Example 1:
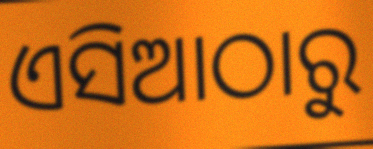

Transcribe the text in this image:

ଏସିଆଠାରୁ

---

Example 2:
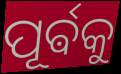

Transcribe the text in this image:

ପୂର୍ଵକୁ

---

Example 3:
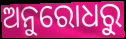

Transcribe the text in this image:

ଅନୁରୋଧରୁ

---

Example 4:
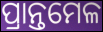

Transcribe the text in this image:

ପ୍ରାନ୍ତମେଳ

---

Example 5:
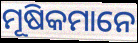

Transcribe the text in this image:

ମୂଷିକମାନେ